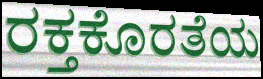
ರಕ್ತಕೊರತೆಯ